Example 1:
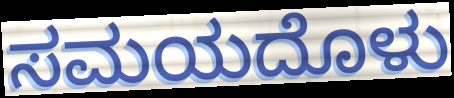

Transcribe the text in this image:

ಸಮಯದೊಳು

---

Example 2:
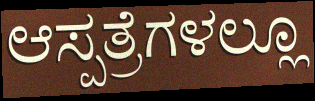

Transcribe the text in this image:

ಆಸ್ಪತ್ರೆಗಳಲ್ಲೂ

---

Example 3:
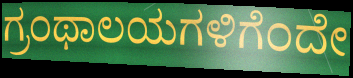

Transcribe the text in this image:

ಗ್ರಂಥಾಲಯಗಳಿಗೆಂದೇ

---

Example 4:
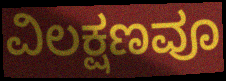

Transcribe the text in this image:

ವಿಲಕ್ಷಣವೂ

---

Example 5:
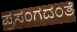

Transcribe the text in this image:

ಪ್ರಸಂಗದಂತೆ